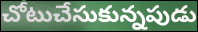
చోటుచేసుకున్నపుడు